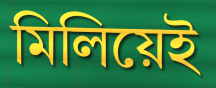
মিলিয়েই